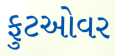
ફુટઓવર